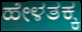
ಹೇಳತಕ್ಕ